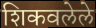
शिकवलेले